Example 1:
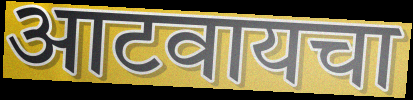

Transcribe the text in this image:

आटवायचा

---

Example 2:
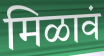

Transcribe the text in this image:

मिळावं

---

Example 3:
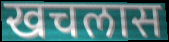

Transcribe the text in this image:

खचलास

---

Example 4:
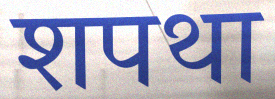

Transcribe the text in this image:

शपथा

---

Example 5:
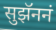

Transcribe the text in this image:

सुझॅननं